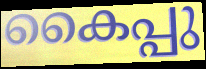
കൈപ്പു